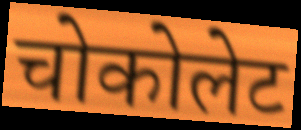
चोकोलेट